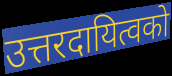
उत्तरदायित्वको